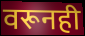
वरूनही